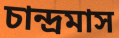
চান্দ্রমাস